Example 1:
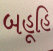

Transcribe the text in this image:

બહૂહિ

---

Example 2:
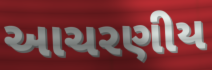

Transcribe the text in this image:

આચરણીય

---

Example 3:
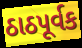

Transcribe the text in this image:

ઠાઠપૂર્વક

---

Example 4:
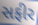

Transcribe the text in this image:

સફીર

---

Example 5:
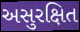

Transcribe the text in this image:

અસુરક્ષિત